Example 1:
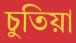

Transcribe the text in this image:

চুতিয়া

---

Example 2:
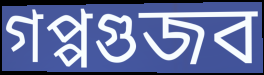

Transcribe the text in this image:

গপ্পগুজব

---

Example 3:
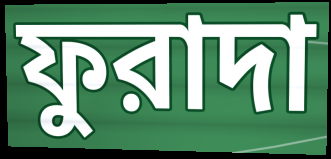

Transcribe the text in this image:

ফুরাদা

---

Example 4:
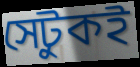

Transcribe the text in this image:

সেটুকই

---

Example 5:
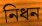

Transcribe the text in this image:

নিধন